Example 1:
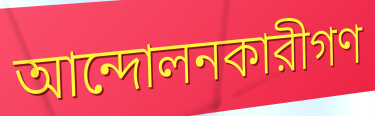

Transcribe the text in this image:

আন্দোলনকারীগণ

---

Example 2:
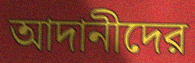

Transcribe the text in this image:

আদানীদের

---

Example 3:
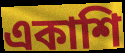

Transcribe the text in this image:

একাশি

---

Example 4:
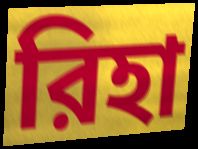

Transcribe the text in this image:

রিহা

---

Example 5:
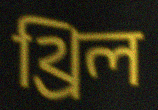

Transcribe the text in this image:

থ্রিল